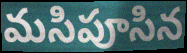
మసిపూసిన